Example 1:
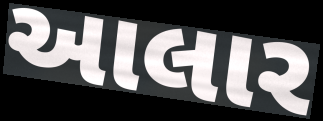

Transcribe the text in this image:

આલાર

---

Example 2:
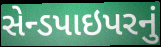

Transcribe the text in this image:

સેન્ડપાઇપરનું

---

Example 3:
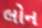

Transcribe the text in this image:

લોન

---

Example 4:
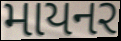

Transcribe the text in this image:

માયનર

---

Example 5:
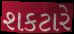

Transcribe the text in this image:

શકટારે